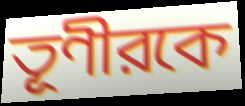
তূণীরকে